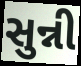
સુન્ની